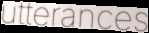
utterances